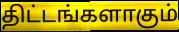
திட்டங்களாகும்